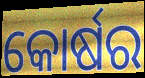
କୋର୍ଷର